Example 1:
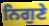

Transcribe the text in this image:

ਨਿਗੁਣੇ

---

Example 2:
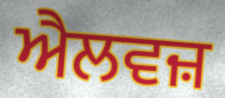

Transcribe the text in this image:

ਐਲਵਜ਼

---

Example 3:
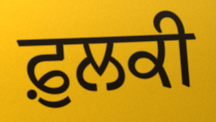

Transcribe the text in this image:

ਫ਼ੁਲਕੀ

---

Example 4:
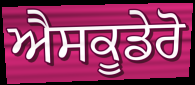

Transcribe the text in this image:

ਐਸਕੂਡੇਰੋ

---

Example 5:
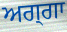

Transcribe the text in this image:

ਅਗ੍ਗਾ